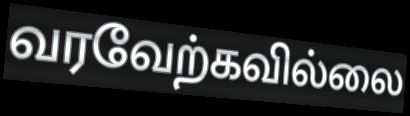
வரவேற்கவில்லை